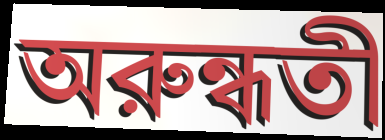
অরুন্ধতী